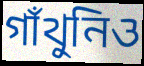
গাঁথুনিও